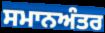
ਸਮਾਨਅੰਤਰ